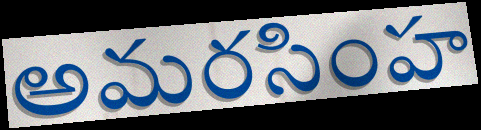
అమరసింహ